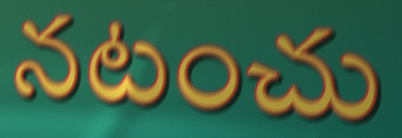
నటంచు